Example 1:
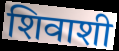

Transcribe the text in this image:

शिवाशी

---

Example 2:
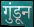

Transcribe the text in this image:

गुंडून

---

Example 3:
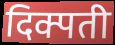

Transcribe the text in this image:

दिक्पती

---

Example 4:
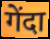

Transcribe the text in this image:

गेंदा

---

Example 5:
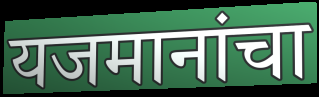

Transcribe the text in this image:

यजमानांचा